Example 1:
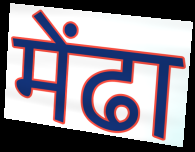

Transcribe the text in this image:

मेंढा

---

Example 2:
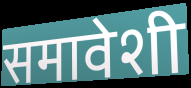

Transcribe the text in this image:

समावेशी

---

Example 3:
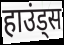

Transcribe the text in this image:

हाउंड्स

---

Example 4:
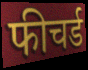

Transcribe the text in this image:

फीचर्ड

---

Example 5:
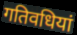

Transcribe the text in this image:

गतिवधियां